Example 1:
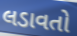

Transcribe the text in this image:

લડાવતો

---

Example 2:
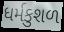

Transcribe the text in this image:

ધર્મકુશળ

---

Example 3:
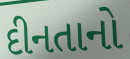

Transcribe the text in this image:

દીનતાનો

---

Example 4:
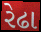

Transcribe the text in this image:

રેઢા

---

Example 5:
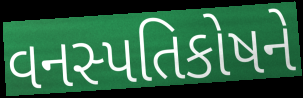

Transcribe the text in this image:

વનસ્પતિકોષને